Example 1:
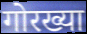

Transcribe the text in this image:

गोरख्या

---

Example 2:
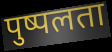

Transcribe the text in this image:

पुष्पलता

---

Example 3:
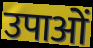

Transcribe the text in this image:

उपाओं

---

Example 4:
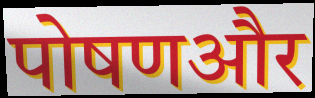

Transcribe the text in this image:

पोषणऔर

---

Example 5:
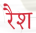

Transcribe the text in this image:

रैश